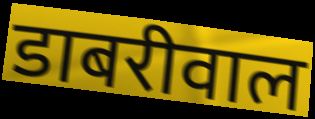
डाबरीवाल